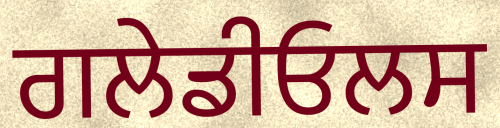
ਗਲੇਡੀਓਲਸ